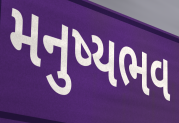
મનુષ્યભવ